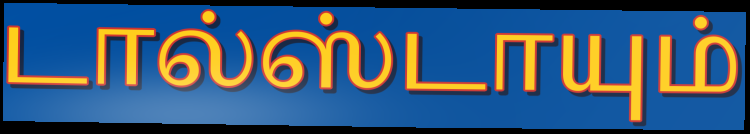
டால்ஸ்டாயும்